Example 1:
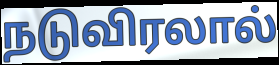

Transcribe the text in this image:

நடுவிரலால்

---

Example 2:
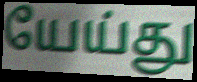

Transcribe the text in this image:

யேய்து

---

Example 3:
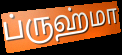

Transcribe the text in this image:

ப்ருஹ்மா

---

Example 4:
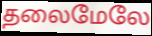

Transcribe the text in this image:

தலைமேலே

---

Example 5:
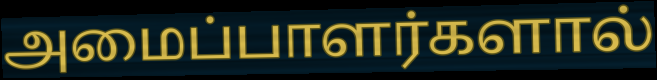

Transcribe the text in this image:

அமைப்பாளர்களால்